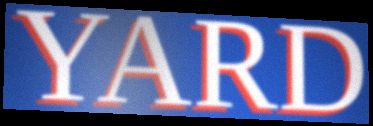
YARD